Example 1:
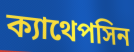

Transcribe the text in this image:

ক্যাথেপসিন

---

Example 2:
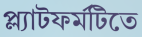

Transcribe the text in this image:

প্ল্যাটফর্মটিতে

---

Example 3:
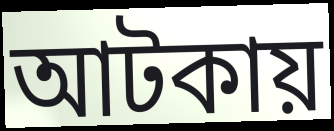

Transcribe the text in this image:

আটকায়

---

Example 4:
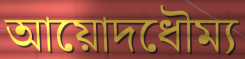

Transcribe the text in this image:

আয়োদধৌম্য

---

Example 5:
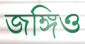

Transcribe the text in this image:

জঙ্গিও